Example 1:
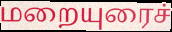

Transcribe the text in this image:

மறையுரைச்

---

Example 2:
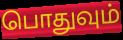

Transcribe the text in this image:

பொதுவும்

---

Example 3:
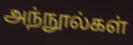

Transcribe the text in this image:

அந்நூல்கள்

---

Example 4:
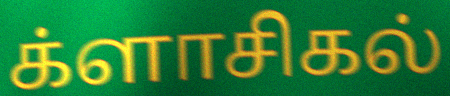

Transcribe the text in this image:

க்ளாசிகல்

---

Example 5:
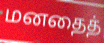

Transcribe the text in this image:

மனதைத்